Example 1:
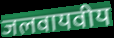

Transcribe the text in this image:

जलवायवीय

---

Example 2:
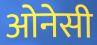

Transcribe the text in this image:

ओनेसी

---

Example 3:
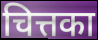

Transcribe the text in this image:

चित्तका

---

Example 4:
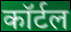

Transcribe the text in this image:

कॉर्टल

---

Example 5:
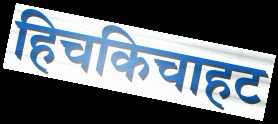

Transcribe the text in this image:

हिचकिचाहट